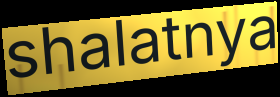
shalatnya